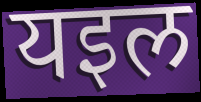
यइल